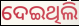
ଦେଇଥିଲି